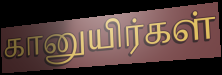
கானுயிர்கள்